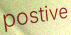
postive